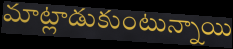
మాట్లాడుకుంటున్నాయి